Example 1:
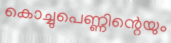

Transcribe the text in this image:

കൊച്ചുപെണ്ണിന്റെയും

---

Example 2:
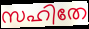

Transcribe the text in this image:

സഹിതേ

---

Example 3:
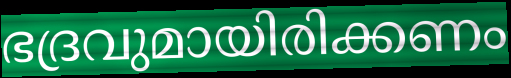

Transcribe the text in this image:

ഭദ്രവുമായിരിക്കണം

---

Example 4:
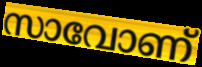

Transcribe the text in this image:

സാവോണ്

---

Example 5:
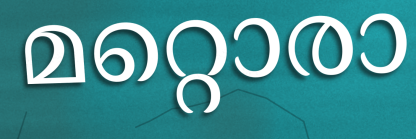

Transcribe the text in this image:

മറ്റൊരാ